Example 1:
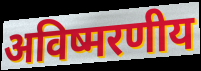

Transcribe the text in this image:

अविष्मरणीय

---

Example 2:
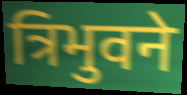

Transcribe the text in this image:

त्रिभुवने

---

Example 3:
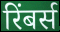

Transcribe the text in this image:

रिंबर्स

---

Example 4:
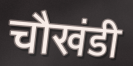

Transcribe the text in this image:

चौखंडी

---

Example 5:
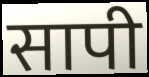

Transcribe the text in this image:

सापी